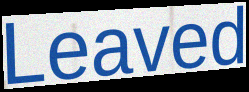
Leaved